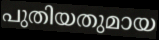
പുതിയതുമായ